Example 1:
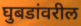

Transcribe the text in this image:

घुबडांवरील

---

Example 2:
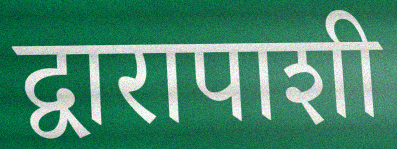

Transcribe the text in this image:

द्वारापाशी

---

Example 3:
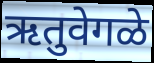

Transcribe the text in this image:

ऋतुवेगळे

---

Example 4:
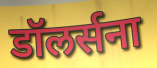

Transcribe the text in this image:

डॉलर्सना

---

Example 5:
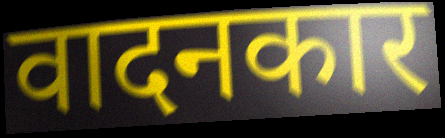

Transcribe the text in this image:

वादनकार